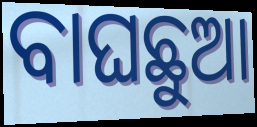
ବାଘଛୁଆ